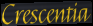
Crescentia